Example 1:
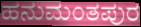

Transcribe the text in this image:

ಹನುಮಂತಪುರ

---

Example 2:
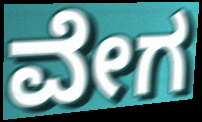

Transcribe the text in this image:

ವೇಗ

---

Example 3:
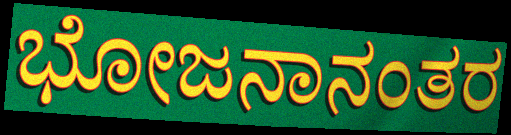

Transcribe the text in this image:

ಭೋಜನಾನಂತರ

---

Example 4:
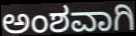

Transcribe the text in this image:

ಅಂಶವಾಗಿ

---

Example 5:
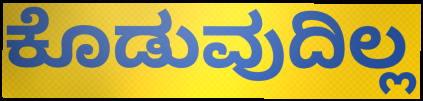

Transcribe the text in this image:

ಕೊಡುವುದಿಲ್ಲ